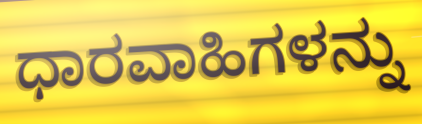
ಧಾರವಾಹಿಗಳನ್ನು